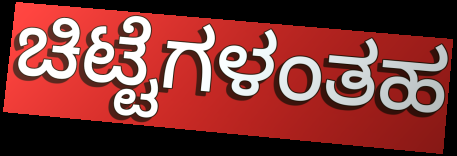
ಚಿಟ್ಟೆಗಳಂತಹ